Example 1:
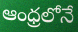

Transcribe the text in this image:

ఆంధ్రలోనే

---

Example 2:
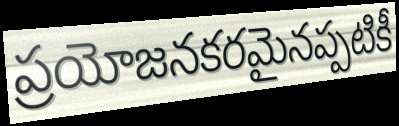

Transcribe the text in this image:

ప్రయోజనకరమైనప్పటికీ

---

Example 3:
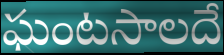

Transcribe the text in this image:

ఘంటసాలదే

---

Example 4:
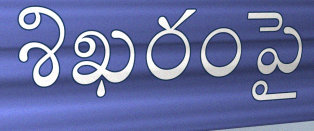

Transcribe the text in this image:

శిఖరంపై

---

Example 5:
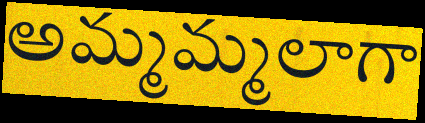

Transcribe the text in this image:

అమ్మమ్మలాగా